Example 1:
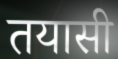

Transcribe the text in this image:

तयासी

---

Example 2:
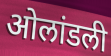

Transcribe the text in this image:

ओलांडली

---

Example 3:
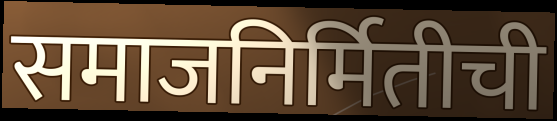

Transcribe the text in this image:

समाजनिर्मितीची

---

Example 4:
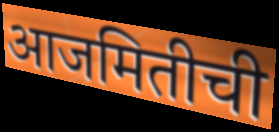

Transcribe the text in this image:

आजमितीची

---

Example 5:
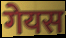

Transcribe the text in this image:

गेयस